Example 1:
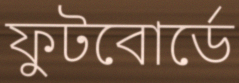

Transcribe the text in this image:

ফুটবোর্ডে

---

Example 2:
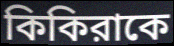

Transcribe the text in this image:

কিকিরাকে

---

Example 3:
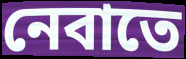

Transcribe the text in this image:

নেবাতে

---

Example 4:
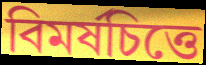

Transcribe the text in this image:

বিমর্ষচিত্তে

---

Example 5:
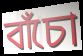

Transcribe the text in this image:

বাঁচো